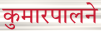
कुमारपालने